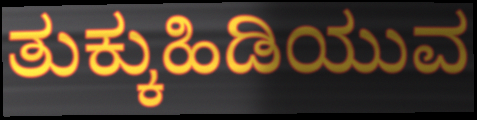
ತುಕ್ಕುಹಿಡಿಯುವ